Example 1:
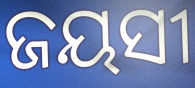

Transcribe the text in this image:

ଜୟସୀ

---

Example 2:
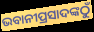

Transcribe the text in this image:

ଭବାନୀପ୍ରସାଦଙ୍କଠୁଁ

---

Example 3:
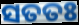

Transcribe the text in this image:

ସତତଃ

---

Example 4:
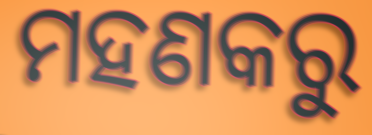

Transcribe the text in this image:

ମହଣକରୁ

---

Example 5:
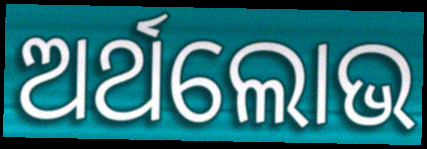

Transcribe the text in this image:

ଅର୍ଥଲୋଭ